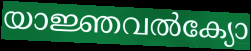
യാജ്ഞവൽക്യോ